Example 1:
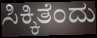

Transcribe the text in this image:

ಸಿಕ್ಕಿತೆಂದು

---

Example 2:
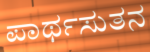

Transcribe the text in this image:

ಪಾರ್ಥಸುತನ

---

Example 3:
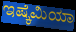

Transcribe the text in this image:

ಇಷ್ಕೆಮಿಯಾ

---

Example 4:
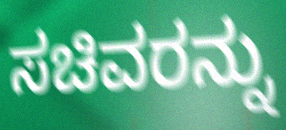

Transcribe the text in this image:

ಸಚಿವರನ್ನು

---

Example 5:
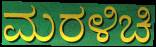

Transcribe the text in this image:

ಮರಳಿಚಿ